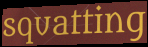
squatting